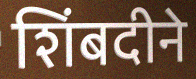
शिंबदीने